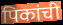
पिकांची